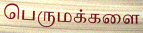
பெருமக்களை